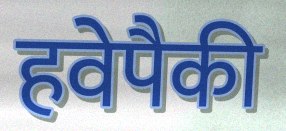
हवेपैकी